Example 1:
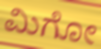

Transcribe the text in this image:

ಮಿಗೋ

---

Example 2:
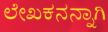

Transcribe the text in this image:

ಲೇಖಕನನ್ನಾಗಿ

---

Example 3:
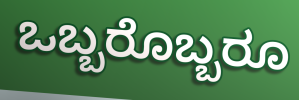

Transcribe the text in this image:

ಒಬ್ಬರೊಬ್ಬರೂ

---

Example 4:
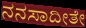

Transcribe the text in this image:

ನನಸಾದೀತೇ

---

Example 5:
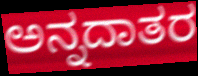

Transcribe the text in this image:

ಅನ್ನದಾತರ